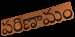
పరిణామం